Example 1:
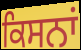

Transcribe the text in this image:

ਕਿਸਨਾਂ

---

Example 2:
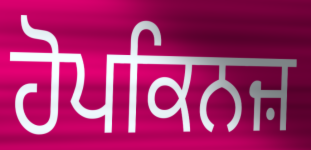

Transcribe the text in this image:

ਹੋਪਕਿਨਜ਼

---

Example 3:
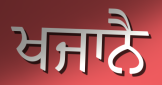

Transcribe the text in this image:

ਖਜਾਨੈ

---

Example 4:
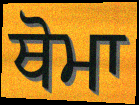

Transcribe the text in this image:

ਥੋਮਾ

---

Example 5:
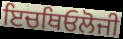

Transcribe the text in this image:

ਇਚਥਿਓਲੋਜੀ